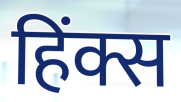
हिंक्स